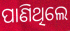
ପାଣିଥିଲେ